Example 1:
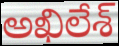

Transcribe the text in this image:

అఖిలేశ్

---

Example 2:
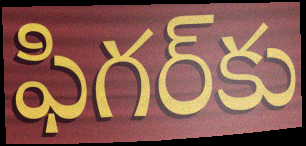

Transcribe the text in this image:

ఫిగర్‌కు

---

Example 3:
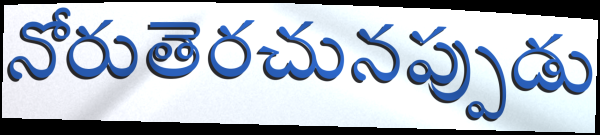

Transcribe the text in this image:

నోరుతెరచునప్పుడు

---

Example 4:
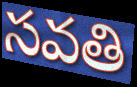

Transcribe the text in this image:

సవతి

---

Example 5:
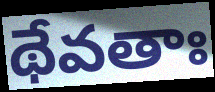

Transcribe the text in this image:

థేవతాః